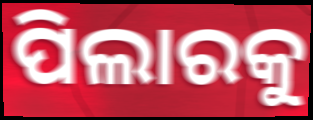
ପିଲାରକୁ